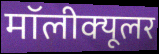
मॉलीक्यूलर